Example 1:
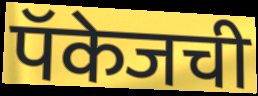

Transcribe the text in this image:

पॅकेजची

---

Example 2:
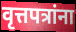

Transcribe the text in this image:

वृत्तपत्रांना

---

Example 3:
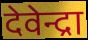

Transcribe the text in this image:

देवेन्द्रा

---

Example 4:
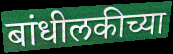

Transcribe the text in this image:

बांधीलकीच्या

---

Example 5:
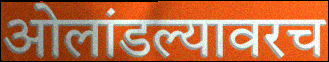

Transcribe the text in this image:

ओलांडल्यावरच